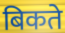
बिकते